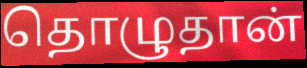
தொழுதான்